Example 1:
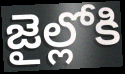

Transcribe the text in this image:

జైల్లోకి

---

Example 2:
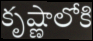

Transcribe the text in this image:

కృష్ణాలోకి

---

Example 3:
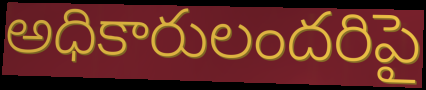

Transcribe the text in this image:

అధికారులందరిపై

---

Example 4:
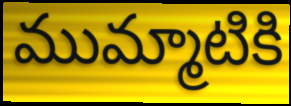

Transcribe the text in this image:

ముమ్మాటికి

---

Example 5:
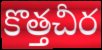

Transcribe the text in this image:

కొత్తచీర